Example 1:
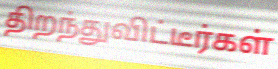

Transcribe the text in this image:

திறந்துவிட்டீர்கள்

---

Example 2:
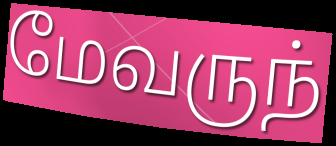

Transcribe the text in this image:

மேவருந்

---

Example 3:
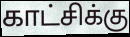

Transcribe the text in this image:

காட்சிக்கு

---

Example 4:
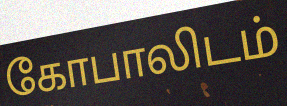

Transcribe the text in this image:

கோபாலிடம்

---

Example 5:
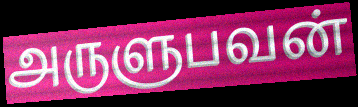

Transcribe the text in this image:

அருளுபவன்